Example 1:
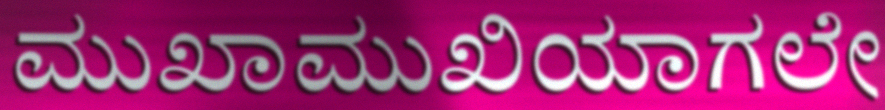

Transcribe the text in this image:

ಮುಖಾಮುಖಿಯಾಗಲೇ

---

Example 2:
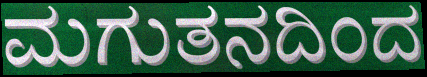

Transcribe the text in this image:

ಮಗುತನದಿಂದ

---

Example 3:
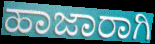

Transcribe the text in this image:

ಹಾಜಾರಾಗಿ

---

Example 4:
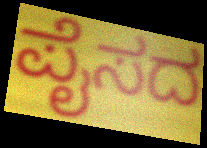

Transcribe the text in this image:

ಪೈಸದ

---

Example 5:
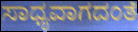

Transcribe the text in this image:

ಸಾಧ್ಯವಾಗದಂತೆ